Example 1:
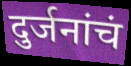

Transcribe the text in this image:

दुर्जनांचं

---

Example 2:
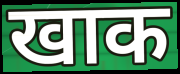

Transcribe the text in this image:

खाक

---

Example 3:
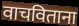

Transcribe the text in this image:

वाचविताना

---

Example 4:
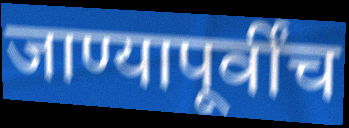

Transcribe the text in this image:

जाण्यापूर्वींच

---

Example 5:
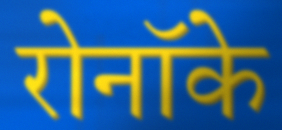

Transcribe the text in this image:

रोनॉके